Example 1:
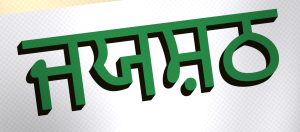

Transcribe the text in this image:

ਜਯਸ਼ਠ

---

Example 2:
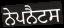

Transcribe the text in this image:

ਨੇਪਨੈਟਸ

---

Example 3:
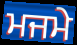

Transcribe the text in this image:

ਮਜਮੇ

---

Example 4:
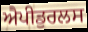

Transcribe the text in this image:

ਐਪੀਡੁਰਲਸ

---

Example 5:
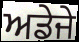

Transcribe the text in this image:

ਅਡੇਜੇ